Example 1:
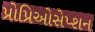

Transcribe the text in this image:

પ્રોપ્રિઓસેપ્શન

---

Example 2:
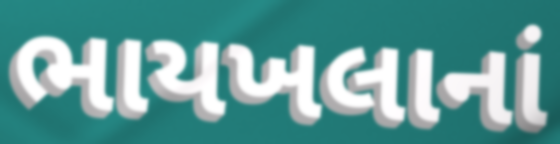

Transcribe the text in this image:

ભાયખલાનાં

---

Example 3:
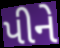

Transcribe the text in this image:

પીને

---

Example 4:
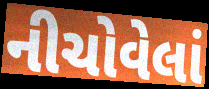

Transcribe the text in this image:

નીચોવેલાં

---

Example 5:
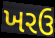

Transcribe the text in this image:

ખરઉ